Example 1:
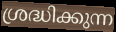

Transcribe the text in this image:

ശ്രദ്ധിക്കുന്ന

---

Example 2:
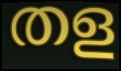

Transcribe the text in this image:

തള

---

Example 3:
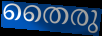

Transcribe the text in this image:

തൈരു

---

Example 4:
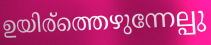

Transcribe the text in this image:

ഉയിര്ത്തെഴുന്നേല്പു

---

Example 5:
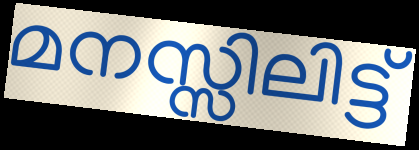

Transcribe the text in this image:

മനസ്സിലിട്ട്